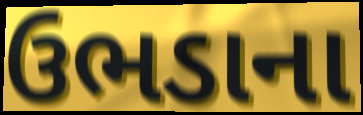
ઉભડાના